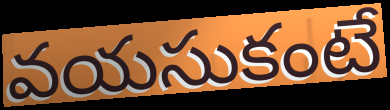
వయసుకంటే